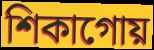
শিকাগোয়